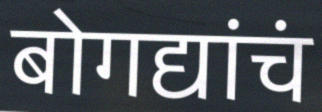
बोगद्यांचं